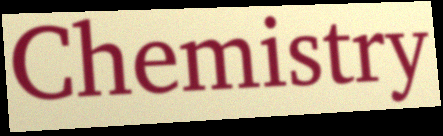
Chemistry